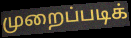
முறைப்படிக்